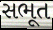
સભૂત